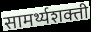
सामर्थ्यशक्ती